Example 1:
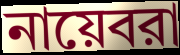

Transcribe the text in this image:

নায়েবরা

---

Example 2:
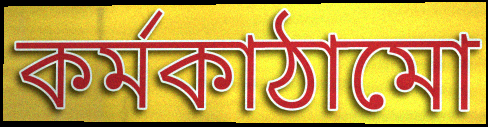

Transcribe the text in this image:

কর্মকাঠামো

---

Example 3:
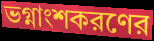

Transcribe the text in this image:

ভগ্নাংশকরণের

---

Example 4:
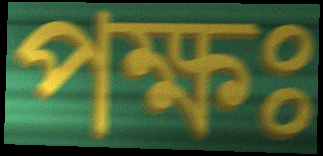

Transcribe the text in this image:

পক্ষঃ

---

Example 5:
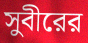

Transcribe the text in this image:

সুবীরের